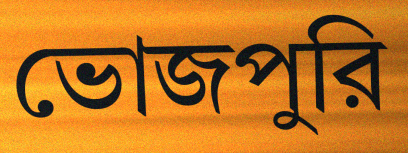
ভোজপুরি